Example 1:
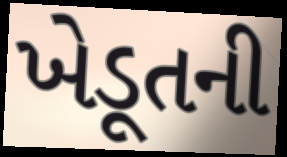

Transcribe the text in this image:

ખેડૂતની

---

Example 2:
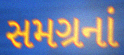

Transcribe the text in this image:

સમગ્રનાં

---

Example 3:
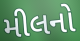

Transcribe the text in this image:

મીલનો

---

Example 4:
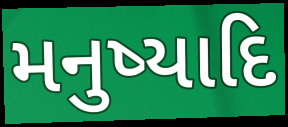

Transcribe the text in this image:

મનુષ્યાદિ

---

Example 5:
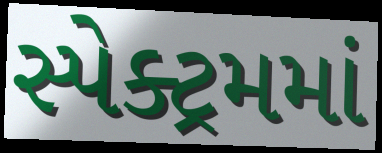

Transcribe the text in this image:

સ્પેક્ટ્રમમાં